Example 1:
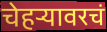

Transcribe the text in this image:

चेहर्‍यावरचं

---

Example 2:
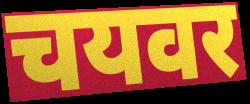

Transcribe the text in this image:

चयवर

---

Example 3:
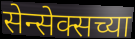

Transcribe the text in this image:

सेन्सेक्सच्या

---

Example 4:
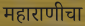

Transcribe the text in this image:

महाराणीचा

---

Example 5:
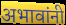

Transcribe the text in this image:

अभावांनी